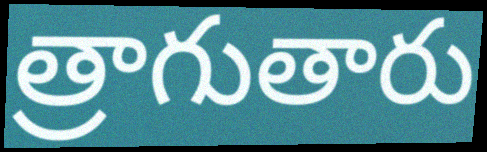
త్రాగుతారు